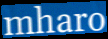
mharo